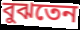
বুঝতেন